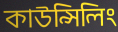
কাউন্সিলিং